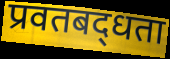
प्रवतबद्धता